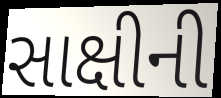
સાક્ષીની